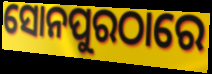
ସୋନପୁରଠାରେ